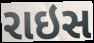
રાઇસ